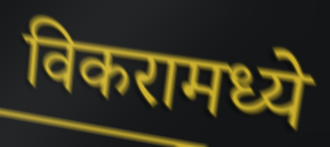
विकरामध्ये